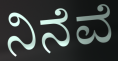
ನಿನೆವೆ